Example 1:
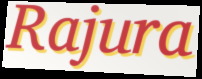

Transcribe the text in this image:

Rajura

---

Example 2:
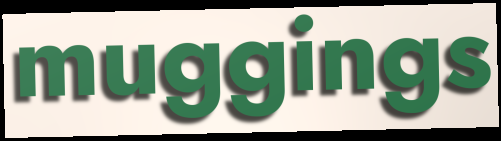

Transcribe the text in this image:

muggings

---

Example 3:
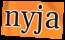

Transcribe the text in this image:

nyja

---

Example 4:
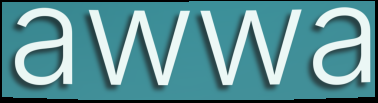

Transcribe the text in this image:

awwa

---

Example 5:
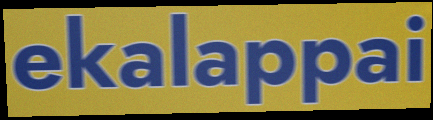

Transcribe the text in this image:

ekalappai